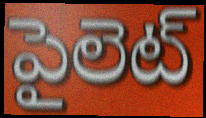
పైలెట్